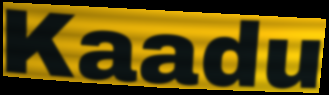
Kaadu